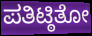
ಪತಿಟ್ಠಿತೋ